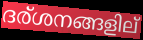
ദര്ശനങ്ങളില്